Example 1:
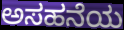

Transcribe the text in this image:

ಅಸಹನೆಯ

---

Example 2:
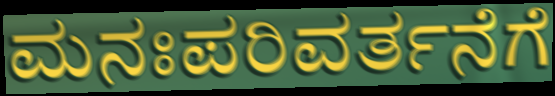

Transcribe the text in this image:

ಮನಃಪರಿವರ್ತನೆಗೆ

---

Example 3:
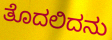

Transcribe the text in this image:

ತೊದಲಿದನು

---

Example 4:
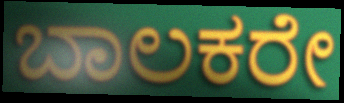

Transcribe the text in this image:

ಬಾಲಕರೇ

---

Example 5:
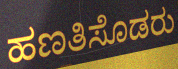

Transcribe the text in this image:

ಹಣತಿಸೊಡರು